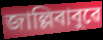
জাল্লিবাবুৱে